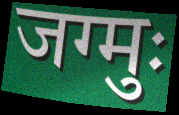
जग्मुः